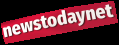
newstodaynet